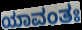
ಯಾವಂತಃ